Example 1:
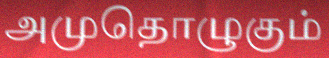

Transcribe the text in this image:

அமுதொழுகும்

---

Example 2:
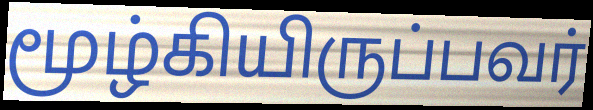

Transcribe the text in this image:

மூழ்கியிருப்பவர்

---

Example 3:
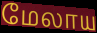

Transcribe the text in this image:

மேலாய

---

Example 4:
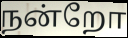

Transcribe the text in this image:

நன்றோ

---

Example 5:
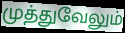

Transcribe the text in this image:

முத்துவேலும்